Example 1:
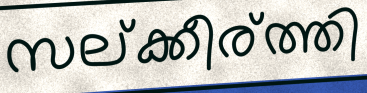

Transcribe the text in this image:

സല്ക്കീര്ത്തി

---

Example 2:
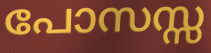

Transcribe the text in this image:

പോസസ്സ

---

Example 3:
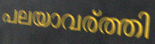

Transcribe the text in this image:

പലയാവര്ത്തി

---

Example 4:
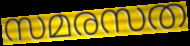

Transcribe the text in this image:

സമരസത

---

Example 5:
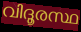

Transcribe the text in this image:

വിദൂരസ്ഥ